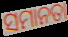
ସମାନତା